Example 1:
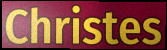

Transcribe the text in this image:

Christes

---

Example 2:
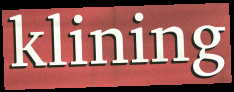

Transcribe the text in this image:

klining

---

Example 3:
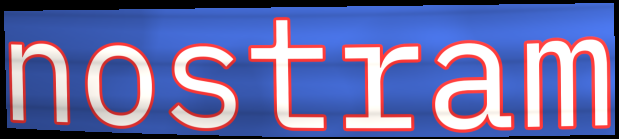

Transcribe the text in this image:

nostram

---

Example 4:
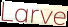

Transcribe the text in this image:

Larve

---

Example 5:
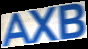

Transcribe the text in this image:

AXB